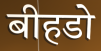
बीहडो